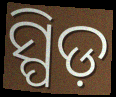
ସ୍ପିଡ଼